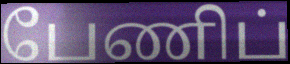
பேணிப்